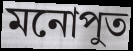
মনোপুত